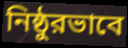
নিষ্ঠুরভাবে